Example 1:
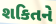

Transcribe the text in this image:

શકિતને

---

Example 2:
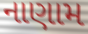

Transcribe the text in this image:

નાણામ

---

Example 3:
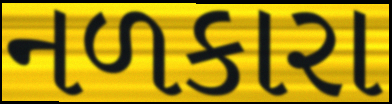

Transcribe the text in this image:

નળકારા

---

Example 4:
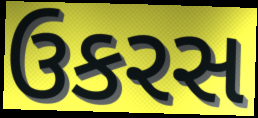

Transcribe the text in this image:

ઉકરસ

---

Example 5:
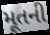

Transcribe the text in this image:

મૂતની